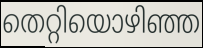
തെറ്റിയൊഴിഞ്ഞ